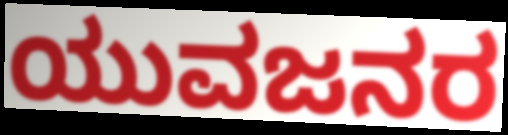
ಯುವಜನರ